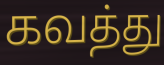
கவத்து